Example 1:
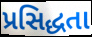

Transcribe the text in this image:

પ્રસિદ્ધતા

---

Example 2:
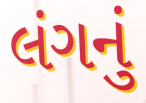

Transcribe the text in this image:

લંગનું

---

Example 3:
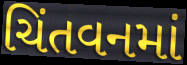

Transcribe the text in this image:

ચિંતવનમાં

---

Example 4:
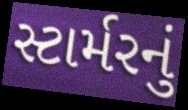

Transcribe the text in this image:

સ્ટાર્મરનું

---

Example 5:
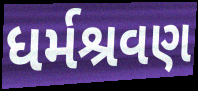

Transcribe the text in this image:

ધર્મશ્રવણ